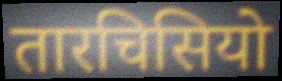
तारचिसियो